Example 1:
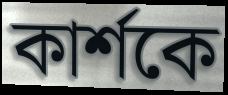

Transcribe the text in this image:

কার্শকে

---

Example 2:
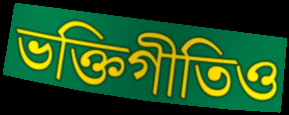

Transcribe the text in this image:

ভক্তিগীতিও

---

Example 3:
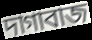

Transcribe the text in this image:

দাগাবাজ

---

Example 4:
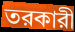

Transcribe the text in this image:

তরকারী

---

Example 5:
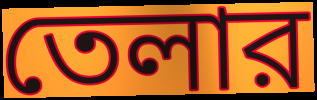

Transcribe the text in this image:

তেলার